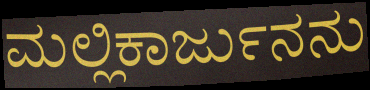
ಮಲ್ಲಿಕಾರ್ಜುನನು